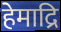
हेमाद्रि